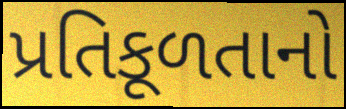
પ્રતિકૂળતાનો